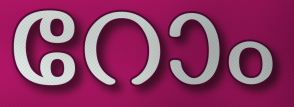
റോം